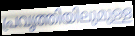
പ്രവൃത്തിയിലുമുള്ള